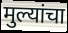
मुल्यांचा